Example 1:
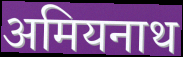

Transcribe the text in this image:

अमियनाथ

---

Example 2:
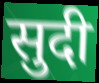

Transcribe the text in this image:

सुदी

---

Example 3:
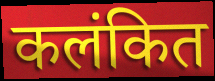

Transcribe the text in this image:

कलंकित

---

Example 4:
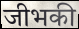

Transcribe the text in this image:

जीभकी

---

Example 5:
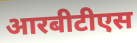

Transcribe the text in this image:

आरबीटीएस